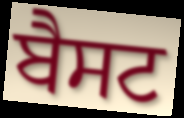
ਬੈਸਟ